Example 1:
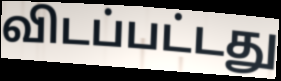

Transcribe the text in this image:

விடப்பட்டது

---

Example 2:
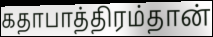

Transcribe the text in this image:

கதாபாத்திரம்தான்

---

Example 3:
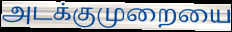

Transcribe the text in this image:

அடக்குமுறையை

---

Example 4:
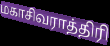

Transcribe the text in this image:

மகாசிவராத்திரி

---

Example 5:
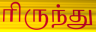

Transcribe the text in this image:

ரிருந்து